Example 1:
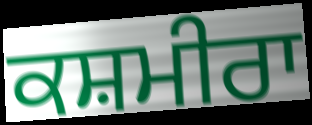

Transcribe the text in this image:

ਕਸ਼ਮੀਰਾ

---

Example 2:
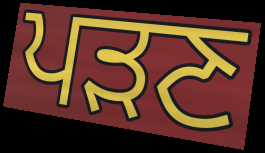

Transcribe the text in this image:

ਪੜਣ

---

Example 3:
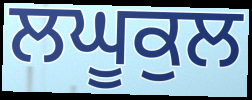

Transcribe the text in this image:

ਲਘੂਕੁਲ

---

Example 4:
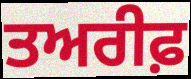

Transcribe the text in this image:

ਤਅਰੀਫ਼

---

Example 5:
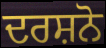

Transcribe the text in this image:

ਦਰਸ਼ਨੋ